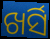
ଖର୍ସି